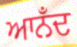
ਆਨਁਦ